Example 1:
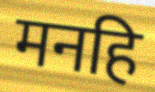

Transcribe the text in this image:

मनहि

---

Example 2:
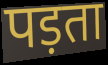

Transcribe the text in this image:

पड़ता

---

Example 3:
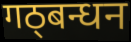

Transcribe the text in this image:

गठ्बन्धन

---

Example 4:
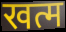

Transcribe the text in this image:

खत्म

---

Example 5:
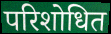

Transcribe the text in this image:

परिशोधित